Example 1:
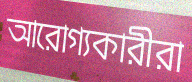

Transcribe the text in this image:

আরোগ্যকারীরা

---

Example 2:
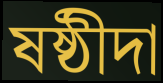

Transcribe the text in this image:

ষষ্ঠীদা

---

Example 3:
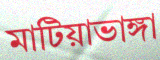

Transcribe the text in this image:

মাটিয়াভাঙ্গা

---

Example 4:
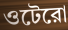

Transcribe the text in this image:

ওটেরো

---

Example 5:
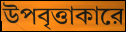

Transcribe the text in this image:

উপবৃত্তাকারে